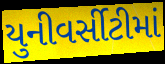
યુનીવર્સીટીમાં